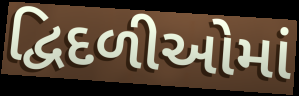
દ્વિદળીઓમાં